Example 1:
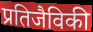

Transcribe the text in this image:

प्रतिजैविकी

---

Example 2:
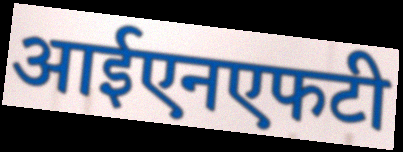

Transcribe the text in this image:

आईएनएफटी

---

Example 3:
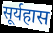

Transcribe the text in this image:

सूर्यहास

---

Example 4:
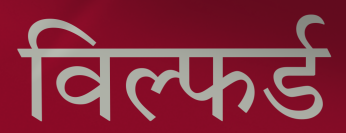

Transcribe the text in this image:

विल्फर्ड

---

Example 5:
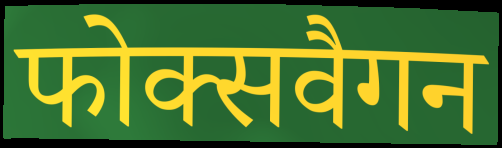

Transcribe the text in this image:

फोक्सवैगन